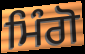
ਮਿੰਗੋ